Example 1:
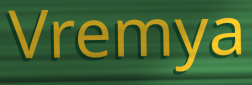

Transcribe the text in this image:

Vremya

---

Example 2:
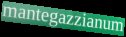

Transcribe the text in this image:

mantegazzianum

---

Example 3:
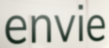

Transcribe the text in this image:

envie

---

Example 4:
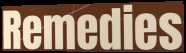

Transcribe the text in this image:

Remedies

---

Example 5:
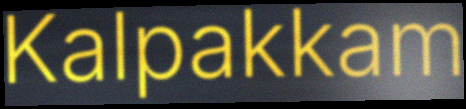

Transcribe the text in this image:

Kalpakkam